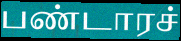
பண்டாரச்